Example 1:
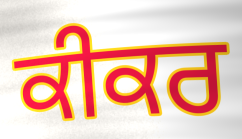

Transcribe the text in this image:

ਕੀਕਰ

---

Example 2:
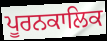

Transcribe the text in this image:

ਪੂਰਨਕਾਲਿਕ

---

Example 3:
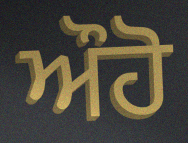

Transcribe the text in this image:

ਔਹੋ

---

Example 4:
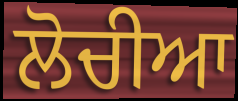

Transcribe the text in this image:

ਲੋਚੀਆ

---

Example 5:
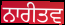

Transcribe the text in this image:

ਨਾਰੀਤਵ